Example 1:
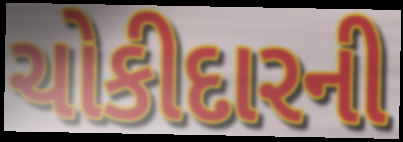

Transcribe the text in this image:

ચોકીદારની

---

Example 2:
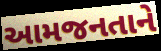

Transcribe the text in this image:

આમજનતાને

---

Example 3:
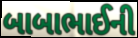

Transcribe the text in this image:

બાબાભાઈની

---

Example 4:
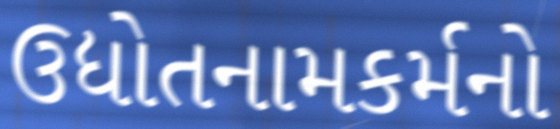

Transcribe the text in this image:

ઉદ્યોતનામકર્મનો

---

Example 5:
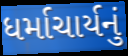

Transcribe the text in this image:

ધર્માચાર્યનું